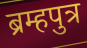
ब्रम्हपुत्र